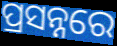
ପ୍ରସନ୍ନରେ